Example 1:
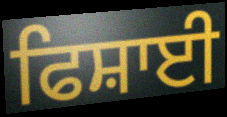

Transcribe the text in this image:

ਫਿਸ਼ਾਈ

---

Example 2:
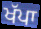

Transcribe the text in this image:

ਖੱਪਾ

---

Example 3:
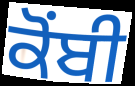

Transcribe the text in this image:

ਕੋਂਬੀ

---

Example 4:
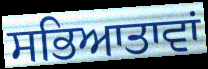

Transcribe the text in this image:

ਸਭਿਆਤਾਵਾਂ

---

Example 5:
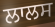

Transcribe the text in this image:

ਲਾਲਸ